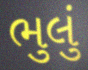
ભુલું